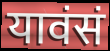
यावंसं